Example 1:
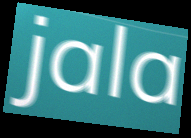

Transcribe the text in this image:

jala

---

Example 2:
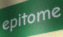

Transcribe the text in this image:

epitome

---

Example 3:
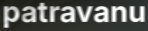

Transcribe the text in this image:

patravanu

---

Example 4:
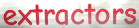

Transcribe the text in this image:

extractors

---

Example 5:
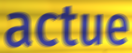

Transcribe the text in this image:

actue